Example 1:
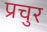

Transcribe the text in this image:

प्रचुर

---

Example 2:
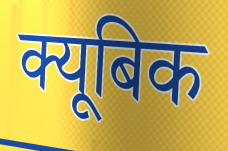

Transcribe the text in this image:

क्यूबिक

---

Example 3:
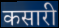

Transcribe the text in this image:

कसारी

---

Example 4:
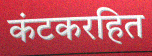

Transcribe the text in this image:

कंटकरहित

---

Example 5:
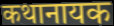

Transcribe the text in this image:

कथानायक